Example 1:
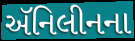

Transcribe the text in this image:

ઍનિલીનના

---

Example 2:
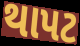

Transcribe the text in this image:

થાપટ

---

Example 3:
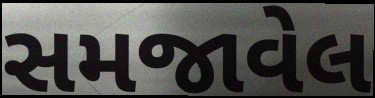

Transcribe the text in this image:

સમજાવેલ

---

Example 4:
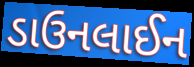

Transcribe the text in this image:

ડાઉનલાઈન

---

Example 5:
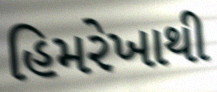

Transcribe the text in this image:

હિમરેખાથી